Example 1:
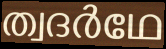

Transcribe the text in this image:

ത്വദർഥേ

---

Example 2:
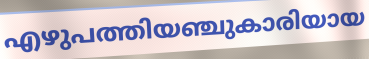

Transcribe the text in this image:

എഴുപത്തിയഞ്ചുകാരിയായ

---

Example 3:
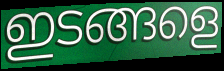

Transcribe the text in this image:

ഇടങ്ങളെ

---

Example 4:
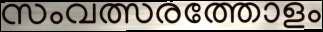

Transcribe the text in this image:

സംവത്സരത്തോളം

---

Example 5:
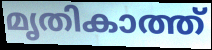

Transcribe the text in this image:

മൃതികാത്ത്